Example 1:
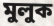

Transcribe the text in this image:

মুলুক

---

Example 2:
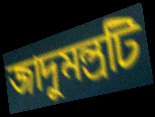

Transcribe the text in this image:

জাদুমন্ত্রটি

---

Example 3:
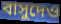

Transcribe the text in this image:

বাসুদেও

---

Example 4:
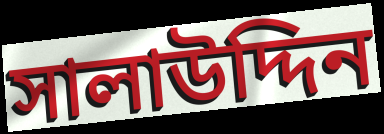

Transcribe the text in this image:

সালাউদ্দিন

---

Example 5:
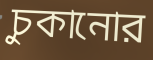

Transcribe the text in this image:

চুকানোর